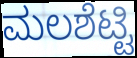
ಮಲಶೆಟ್ಟಿ